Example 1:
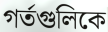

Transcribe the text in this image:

গর্তগুলিকে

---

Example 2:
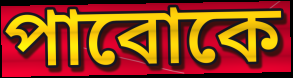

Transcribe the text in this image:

পাবোকে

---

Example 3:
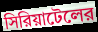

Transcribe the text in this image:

সিরিয়াটেলের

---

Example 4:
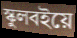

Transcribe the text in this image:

স্কুলবইয়ে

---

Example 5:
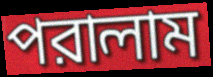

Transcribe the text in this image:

পরালাম